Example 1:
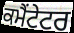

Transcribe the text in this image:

ਕਮੈਂਟੇਟਰ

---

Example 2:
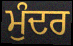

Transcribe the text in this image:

ਮੁੰਦਰ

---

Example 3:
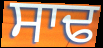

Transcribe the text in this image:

ਸਾਢ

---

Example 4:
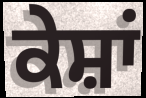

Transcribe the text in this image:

ਕੇਸ਼ਾਂ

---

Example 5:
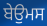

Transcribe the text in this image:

ਬੇਉਮਸ